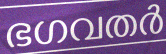
ഭഗവതർ